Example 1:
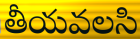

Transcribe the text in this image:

తీయవలసి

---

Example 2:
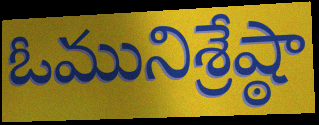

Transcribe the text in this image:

ఓమునిశ్రేష్ఠా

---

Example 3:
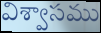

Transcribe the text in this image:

విశ్వాసము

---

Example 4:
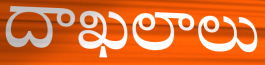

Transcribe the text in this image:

దాఖలాలు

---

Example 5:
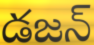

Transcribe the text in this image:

డజన్